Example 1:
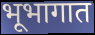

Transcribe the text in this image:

भूभागात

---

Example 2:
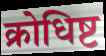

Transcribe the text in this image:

क्रोधिष्ट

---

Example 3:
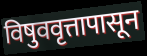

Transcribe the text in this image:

विषुववृत्तापासून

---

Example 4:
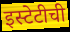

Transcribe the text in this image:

इस्टेटीची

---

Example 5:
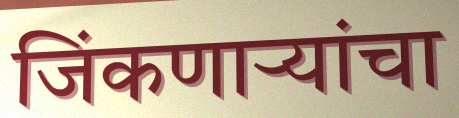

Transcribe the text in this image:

जिंकणाऱ्यांचा